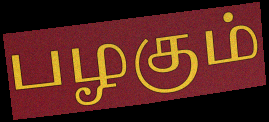
பழகும்